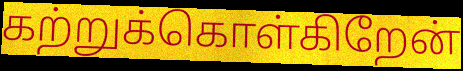
கற்றுக்கொள்கிறேன்